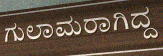
ಗುಲಾಮರಾಗಿದ್ದ